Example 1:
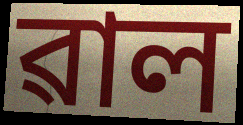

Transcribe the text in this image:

ৱাল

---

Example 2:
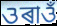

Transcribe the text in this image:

ওৰাওঁ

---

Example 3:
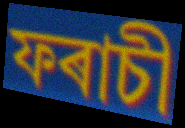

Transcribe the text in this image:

ফৰাচী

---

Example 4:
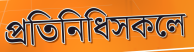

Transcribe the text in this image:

প্ৰতিনিধিসকলে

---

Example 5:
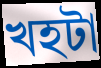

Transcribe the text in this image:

খহটা